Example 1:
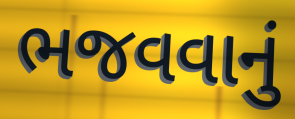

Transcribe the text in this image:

ભજવવાનું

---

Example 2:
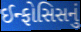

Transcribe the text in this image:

ઈન્ફોસિસનું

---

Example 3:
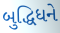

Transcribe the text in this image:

બુદ્ધિધને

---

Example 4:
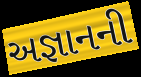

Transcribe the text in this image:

અજ્ઞાનની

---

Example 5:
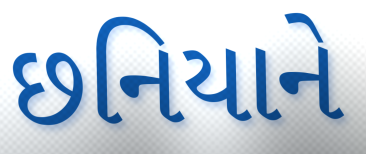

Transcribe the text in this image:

છનિયાને